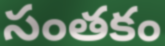
సంతకం